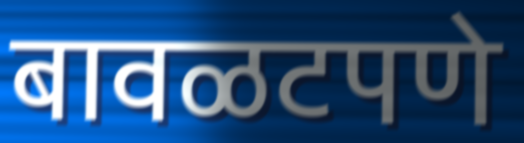
बावळटपणे